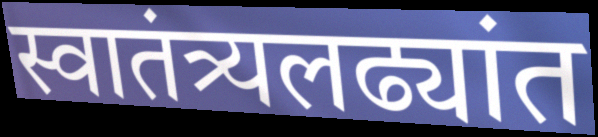
स्वातंत्र्यलढ्यांत